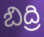
బిద్రి